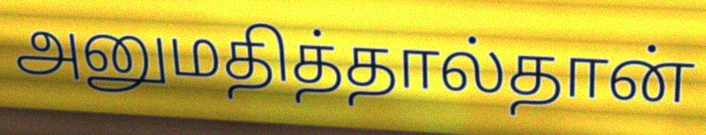
அனுமதித்தால்தான்